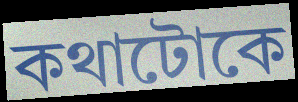
কথাটোকে